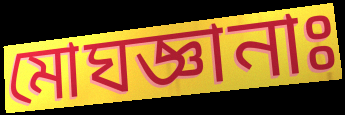
মোঘজ্ঞানাঃ